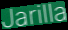
Jarilla